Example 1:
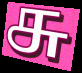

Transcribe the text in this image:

சு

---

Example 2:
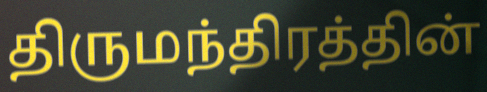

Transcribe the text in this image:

திருமந்திரத்தின்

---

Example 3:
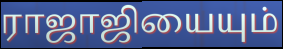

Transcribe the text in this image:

ராஜாஜியையும்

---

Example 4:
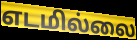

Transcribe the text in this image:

எடமில்லை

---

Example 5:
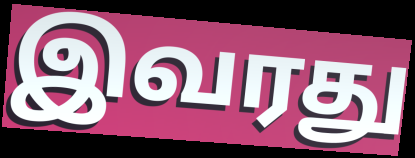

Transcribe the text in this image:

இவரது